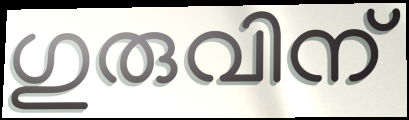
ഗുരുവിന്